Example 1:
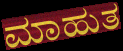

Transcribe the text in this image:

ಮಾಹುತ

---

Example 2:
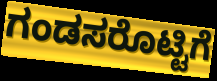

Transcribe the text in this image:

ಗಂಡಸರೊಟ್ಟಿಗೆ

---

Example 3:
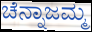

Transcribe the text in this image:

ಚೆನ್ನಾಜಮ್ಮ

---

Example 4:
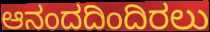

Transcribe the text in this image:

ಆನಂದದಿಂದಿರಲು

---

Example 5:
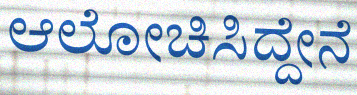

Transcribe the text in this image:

ಆಲೋಚಿಸಿದ್ದೇನೆ